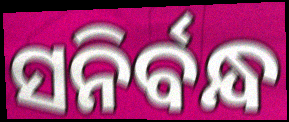
ସନିର୍ବନ୍ଧ